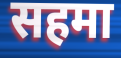
सहमा